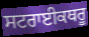
ਸਟਰਾਈਕਥਰੂ